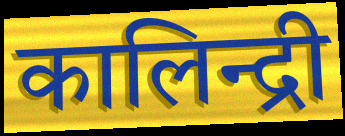
कालिन्द्री